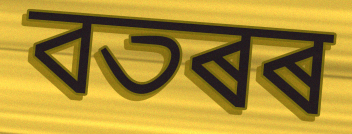
বতৰৰ